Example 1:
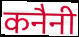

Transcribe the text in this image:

कनैनी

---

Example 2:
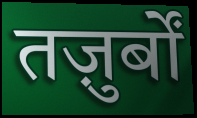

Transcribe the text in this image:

तज़ुर्बों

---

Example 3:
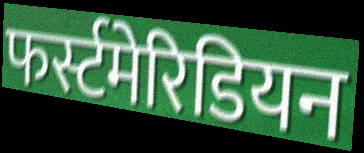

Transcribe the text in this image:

फर्स्टमेरिडियन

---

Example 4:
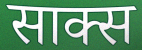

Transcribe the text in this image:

साक्स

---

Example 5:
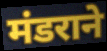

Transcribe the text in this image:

मंडराने